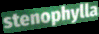
stenophylla